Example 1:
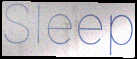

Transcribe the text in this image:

Sleep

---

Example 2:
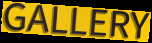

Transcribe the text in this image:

GALLERY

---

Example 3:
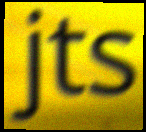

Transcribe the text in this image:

jts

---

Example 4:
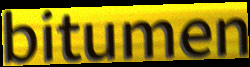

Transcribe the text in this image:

bitumen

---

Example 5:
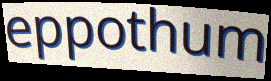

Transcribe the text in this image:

eppothum